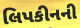
લિપકીનની